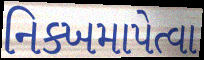
નિક્ખમાપેત્વા